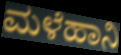
ಮಳೆಹಾನಿ